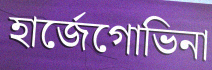
হাৰ্জেগোভিনা